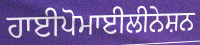
ਹਾਈਪੋਮਾਈਲੀਨੇਸ਼ਨ